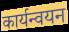
कार्यन्वयन